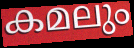
കമലും